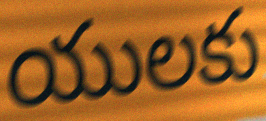
యులకు